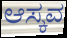
ಆಸ್ಕವ